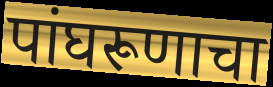
पांघरूणाचा